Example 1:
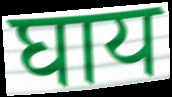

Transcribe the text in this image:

घाय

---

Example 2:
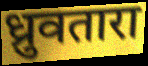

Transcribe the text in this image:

ध्रुवतारा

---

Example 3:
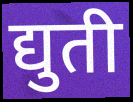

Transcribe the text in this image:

द्युती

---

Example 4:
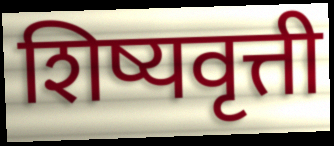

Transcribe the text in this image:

शिष्यवृत्ती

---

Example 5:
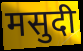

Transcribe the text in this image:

मसुदी